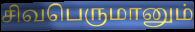
சிவபெருமானும்